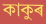
কাকুৰ